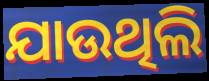
ଯାଉଥିଲି